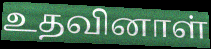
உதவினாள்